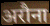
अरौना